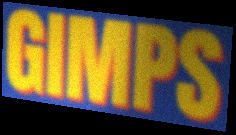
GIMPS